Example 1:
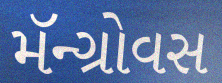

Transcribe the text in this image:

મૅન્ગ્રોવસ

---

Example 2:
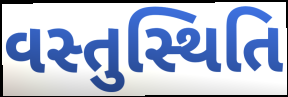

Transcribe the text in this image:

વસ્તુસ્થિતિ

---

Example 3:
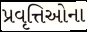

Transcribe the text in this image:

પ્રવૃત્તિઓના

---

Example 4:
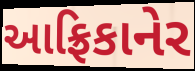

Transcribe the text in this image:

આફ્રિકાનેર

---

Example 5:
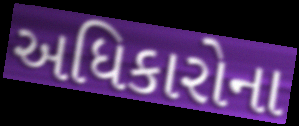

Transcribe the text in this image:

અધિકારોના